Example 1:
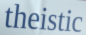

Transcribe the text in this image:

theistic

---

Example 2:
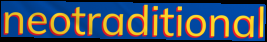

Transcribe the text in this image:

neotraditional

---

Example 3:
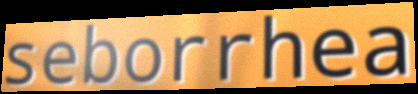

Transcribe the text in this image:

seborrhea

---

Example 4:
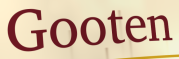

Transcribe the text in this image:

Gooten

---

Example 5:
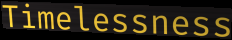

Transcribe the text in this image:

Timelessness